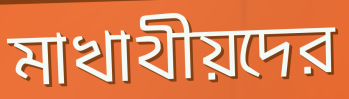
মাখাথীয়দের